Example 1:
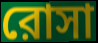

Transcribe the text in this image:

রোসা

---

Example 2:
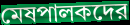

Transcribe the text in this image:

মেষপালকদের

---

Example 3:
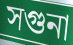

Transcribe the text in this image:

সগুনা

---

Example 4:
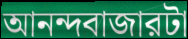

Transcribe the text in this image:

আনন্দবাজারটা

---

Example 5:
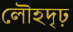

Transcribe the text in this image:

লৌহদৃঢ়